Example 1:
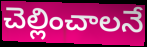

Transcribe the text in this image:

చెల్లించాలనే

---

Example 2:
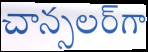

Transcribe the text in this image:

చాన్సలర్‌గా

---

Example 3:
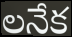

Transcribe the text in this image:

లనేక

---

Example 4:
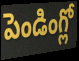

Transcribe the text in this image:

పెండింగ్లో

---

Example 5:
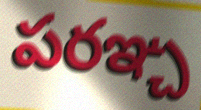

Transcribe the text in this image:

పరఞ్చ